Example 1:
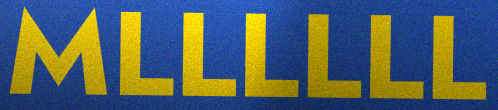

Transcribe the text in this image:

MLLLLLL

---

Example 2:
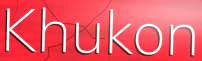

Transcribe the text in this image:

Khukon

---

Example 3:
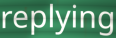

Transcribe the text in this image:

replying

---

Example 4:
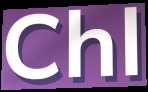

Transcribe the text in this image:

Chl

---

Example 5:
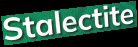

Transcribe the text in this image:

Stalectite